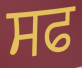
ਸਫ